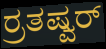
ರ್ರತಷ್ವರ್